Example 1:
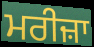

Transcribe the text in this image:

ਮਰੀਜ਼ਾ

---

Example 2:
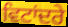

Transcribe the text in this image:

ਵਿਟਾਂਦਰੇ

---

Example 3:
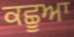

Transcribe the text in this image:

ਕਛੂਆ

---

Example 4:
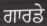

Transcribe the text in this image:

ਗਾਰਡੇ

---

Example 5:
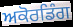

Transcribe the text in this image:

ਅਕੋਰਡਿੰਗ